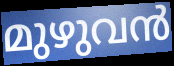
മുഴുവൻ